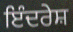
ਇੰਦਰੇਸ਼